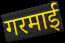
गरमाई